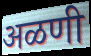
अळणी